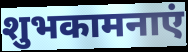
शुभकामनाएं